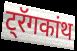
ट्रॅगकांथ